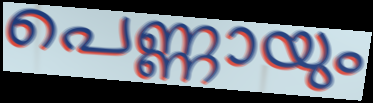
പെണ്ണായും